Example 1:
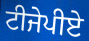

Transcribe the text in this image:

ਟੀਜੇਪੀਏ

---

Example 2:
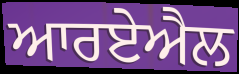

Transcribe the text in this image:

ਆਰਏਐਲ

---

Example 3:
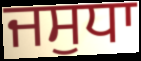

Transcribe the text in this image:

ਜਸੁਧਾ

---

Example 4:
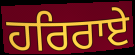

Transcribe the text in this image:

ਹਰਿਰਾਏ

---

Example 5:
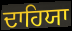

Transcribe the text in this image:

ਦਾਹਿਯਾ